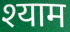
श्‍याम